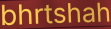
bhrtshah